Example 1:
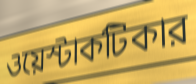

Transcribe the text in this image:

ওয়েস্টার্কটিকার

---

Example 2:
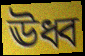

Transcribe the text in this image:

ঊধ্ব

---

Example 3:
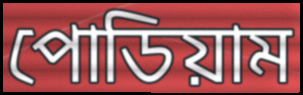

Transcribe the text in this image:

পোডিয়াম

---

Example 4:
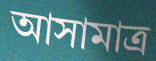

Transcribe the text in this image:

আসামাত্র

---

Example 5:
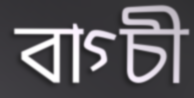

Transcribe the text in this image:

বাগ্চী